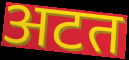
अटत